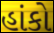
હાંકો